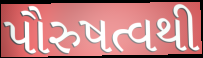
પૌરુષત્વથી